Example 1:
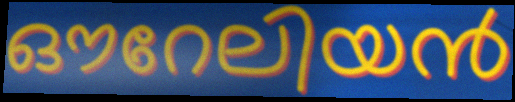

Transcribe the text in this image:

ഔറേലിയൻ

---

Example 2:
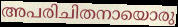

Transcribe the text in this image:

അപരിചിതനായൊരു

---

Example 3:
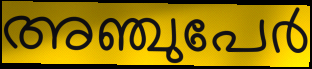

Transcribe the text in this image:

അഞ്ചുപേർ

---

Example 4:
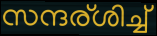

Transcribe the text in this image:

സന്ദര്ശിച്ച്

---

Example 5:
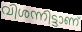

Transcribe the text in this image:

വിശന്നിട്ടാണ്